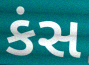
કંસ